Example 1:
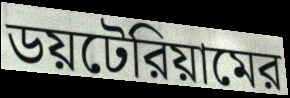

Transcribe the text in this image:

ডয়টেরিয়ামের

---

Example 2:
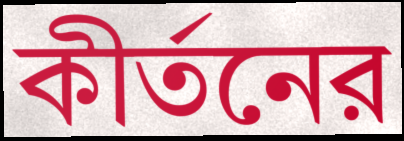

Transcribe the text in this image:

কীর্তনের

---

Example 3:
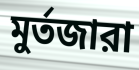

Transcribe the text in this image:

মুর্তজারা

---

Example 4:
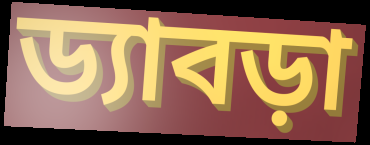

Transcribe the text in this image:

ড্যাবড়া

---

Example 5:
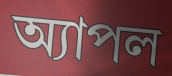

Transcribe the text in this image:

অ্যাপল